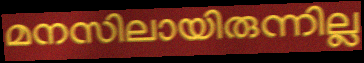
മനസിലായിരുന്നില്ല